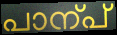
പാന്പ്